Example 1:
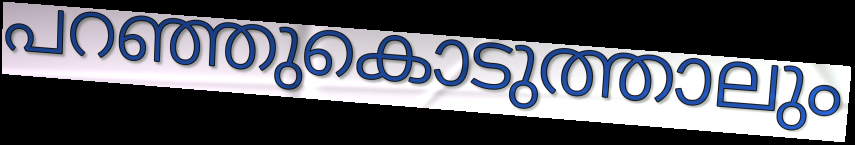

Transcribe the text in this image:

പറഞ്ഞുകൊടുത്താലും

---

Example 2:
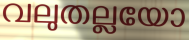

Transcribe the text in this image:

വലുതല്ലയോ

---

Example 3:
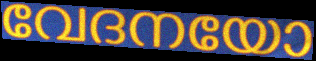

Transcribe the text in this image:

വേദനയോ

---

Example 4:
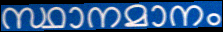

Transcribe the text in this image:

സ്ഥാനമാനം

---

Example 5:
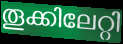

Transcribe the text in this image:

തൂക്കിലേറ്റി